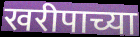
खरीपाच्या